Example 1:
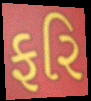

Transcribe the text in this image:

ફરિ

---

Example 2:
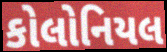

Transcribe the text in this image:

કોલોનિયલ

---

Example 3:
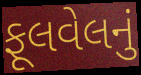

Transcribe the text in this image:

ફૂલવેલનું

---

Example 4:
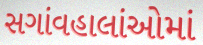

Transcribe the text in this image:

સગાંવહાલાંઓમાં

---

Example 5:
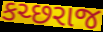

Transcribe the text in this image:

કચ્છરાજ